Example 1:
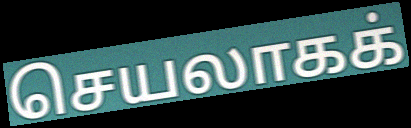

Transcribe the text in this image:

செயலாகக்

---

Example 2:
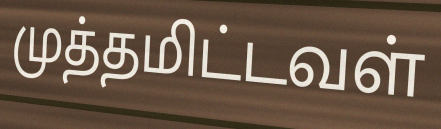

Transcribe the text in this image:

முத்தமிட்டவள்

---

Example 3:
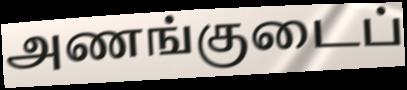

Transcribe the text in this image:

அணங்குடைப்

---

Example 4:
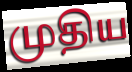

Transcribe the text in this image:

முதிய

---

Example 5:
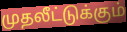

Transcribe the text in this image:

முதலீட்டுக்கும்